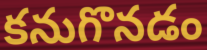
కనుగొనడం